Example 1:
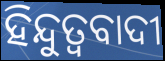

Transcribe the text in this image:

ହିନ୍ଦୁତ୍ୱବାଦୀ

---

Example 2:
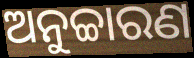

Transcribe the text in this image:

ଅନୁଚ୍ଚାରଣ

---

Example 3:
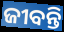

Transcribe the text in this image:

ଜୀବନ୍ତି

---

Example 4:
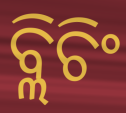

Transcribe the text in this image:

ବ୍ଲିଚିଂ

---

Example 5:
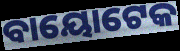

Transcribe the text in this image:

ବାୟୋଟେକ